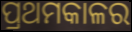
ପ୍ରଥମକାଳର